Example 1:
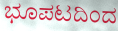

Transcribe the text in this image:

ಭೂಪಟದಿಂದ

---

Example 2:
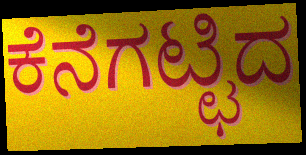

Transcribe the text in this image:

ಕೆನೆಗಟ್ಟಿದ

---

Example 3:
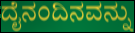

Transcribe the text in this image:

ದೈನಂದಿನವನ್ನು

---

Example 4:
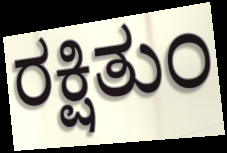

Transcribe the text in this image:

ರಕ್ಷಿತುಂ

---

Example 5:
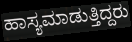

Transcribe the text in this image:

ಹಾಸ್ಯಮಾಡುತ್ತಿದ್ದರು